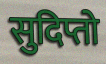
सुदिप्तो